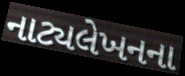
નાટ્યલેખનના